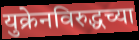
युक्रेनविरुद्धच्या